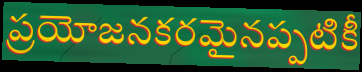
ప్రయోజనకరమైనప్పటికీ